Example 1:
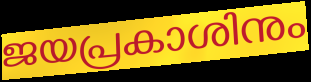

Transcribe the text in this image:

ജയപ്രകാശിനും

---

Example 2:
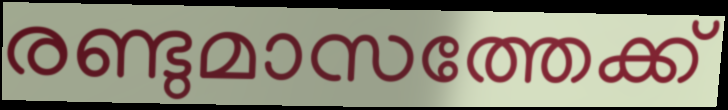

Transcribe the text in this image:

രണ്ടുമാസത്തേക്ക്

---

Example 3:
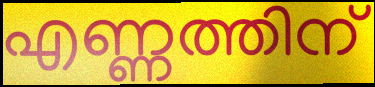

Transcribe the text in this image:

എണ്ണത്തിന്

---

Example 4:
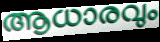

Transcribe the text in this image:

ആധാരവും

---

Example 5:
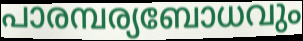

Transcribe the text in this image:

പാരമ്പര്യബോധവും